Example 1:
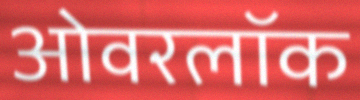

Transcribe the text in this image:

ओवरलॉक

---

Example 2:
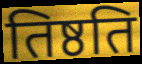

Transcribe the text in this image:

तिष्ठति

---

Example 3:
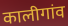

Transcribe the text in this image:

कालीगांव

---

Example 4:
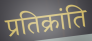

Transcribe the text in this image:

प्रतिक्रांति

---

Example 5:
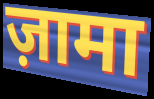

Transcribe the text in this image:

ज़ामा